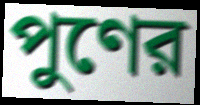
পুণের